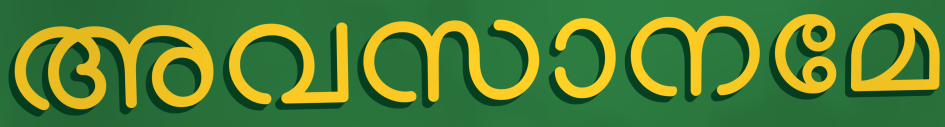
അവസാനമേ